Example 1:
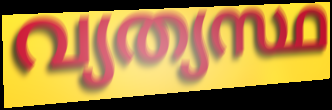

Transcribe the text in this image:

വ്യത്യസ്ഥ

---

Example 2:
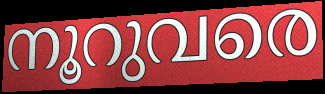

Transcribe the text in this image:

നൂറുവരെ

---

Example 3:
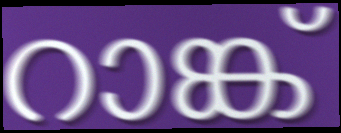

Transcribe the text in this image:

റാങ്ക്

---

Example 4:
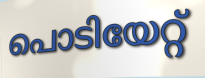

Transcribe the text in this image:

പൊടിയേറ്റ്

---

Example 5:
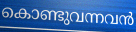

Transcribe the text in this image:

കൊണ്ടുവന്നവൻ